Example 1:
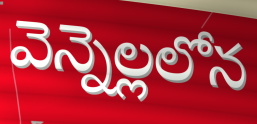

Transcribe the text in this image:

వెన్నెల్లలోన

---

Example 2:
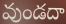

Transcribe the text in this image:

వుండదా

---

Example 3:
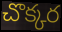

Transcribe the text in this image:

చొక్కర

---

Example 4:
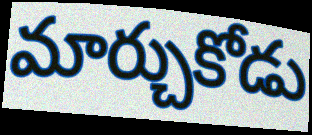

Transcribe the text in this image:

మార్చుకోడు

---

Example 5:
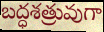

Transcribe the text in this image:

బద్ధశత్రువుగా